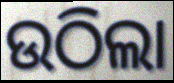
ଉଠିଲା